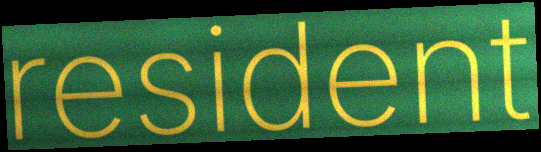
resident